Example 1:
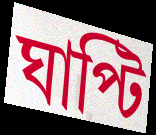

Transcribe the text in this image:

ঘাপ্টি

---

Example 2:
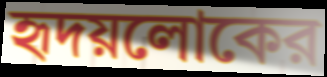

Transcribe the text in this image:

হৃদয়লোকের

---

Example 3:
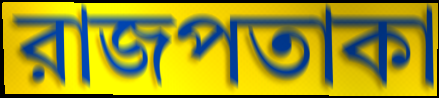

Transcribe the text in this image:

রাজপতাকা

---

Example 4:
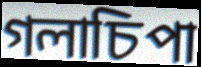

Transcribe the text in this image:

গলাচিপা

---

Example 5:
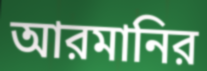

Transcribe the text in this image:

আরমানির